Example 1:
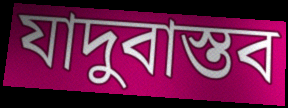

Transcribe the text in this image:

যাদুবাস্তব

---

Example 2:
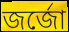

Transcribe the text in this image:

জর্জো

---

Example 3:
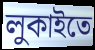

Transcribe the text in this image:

লুকাইতে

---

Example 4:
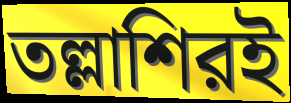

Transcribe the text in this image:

তল্লাশিরই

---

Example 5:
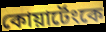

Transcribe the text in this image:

কোয়ার্টেংকে